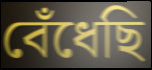
বেঁধেছি